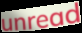
unread